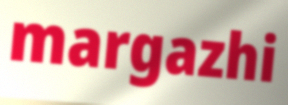
margazhi